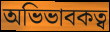
অভিভাবকত্ব